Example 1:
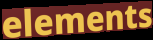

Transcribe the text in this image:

elements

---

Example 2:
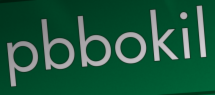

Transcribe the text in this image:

pbbokil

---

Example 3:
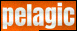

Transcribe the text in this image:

pelagic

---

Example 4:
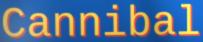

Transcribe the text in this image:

Cannibal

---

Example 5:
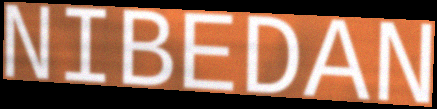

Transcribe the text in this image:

NIBEDAN